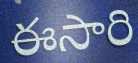
ఈసారి